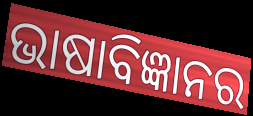
ଭାଷାବିଜ୍ଞାନର